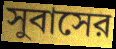
সুবাসের